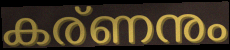
കര്ണനും